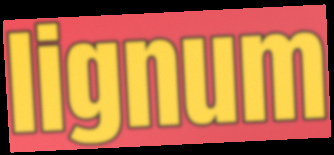
lignum